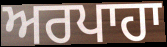
ਅਰਪਾਹਾ